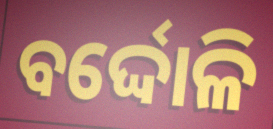
ବର୍ଦ୍ଦୋଳି